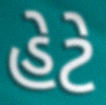
હેટે